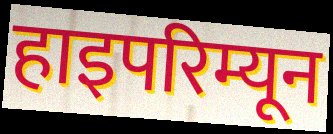
हाइपरिम्यून